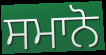
ਸਮਾਨੋ